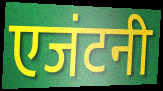
एजंटनी